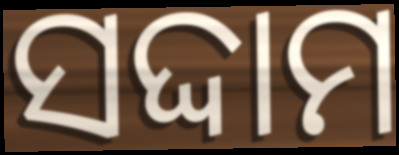
ସଦ୍ଦାମ